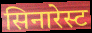
सिनारेस्ट